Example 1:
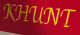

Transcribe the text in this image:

KHUNT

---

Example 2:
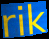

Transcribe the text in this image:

rik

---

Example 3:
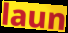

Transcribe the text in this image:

laun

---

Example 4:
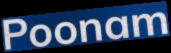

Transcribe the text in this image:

Poonam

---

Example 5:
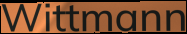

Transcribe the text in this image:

Wittmann